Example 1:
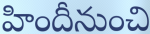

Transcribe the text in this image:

హిందీనుంచి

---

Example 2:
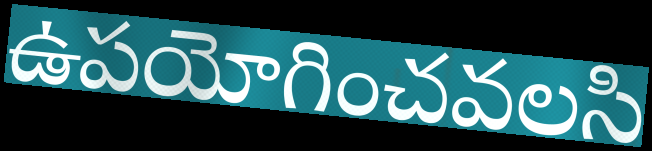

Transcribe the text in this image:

ఉపయోగించవలసి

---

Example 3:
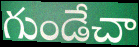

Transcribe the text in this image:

గుండేచా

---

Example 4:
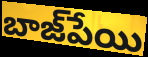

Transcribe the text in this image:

బాజ్‌పేయి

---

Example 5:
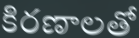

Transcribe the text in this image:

కిరణాలతో